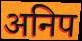
अनिप